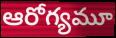
ఆరోగ్యమూ